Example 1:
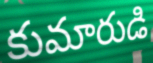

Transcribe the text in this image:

కుమారుడి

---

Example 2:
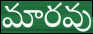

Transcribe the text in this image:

మారవు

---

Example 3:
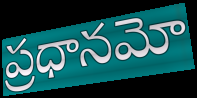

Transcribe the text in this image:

ప్రధానమో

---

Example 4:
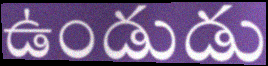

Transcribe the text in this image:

ఉండుడు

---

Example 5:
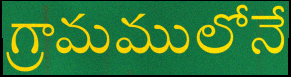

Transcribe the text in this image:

గ్రామములోనే